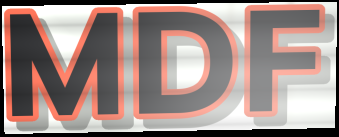
MDF